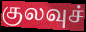
குலவுச்